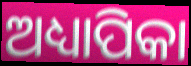
ଅଧ୍ୟାପିକା